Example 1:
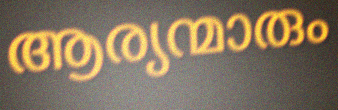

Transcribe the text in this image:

ആര്യന്മാരും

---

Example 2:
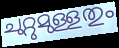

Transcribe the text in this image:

ചുറ്റുമുള്ളതും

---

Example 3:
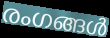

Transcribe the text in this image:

രംഗങ്ങൾ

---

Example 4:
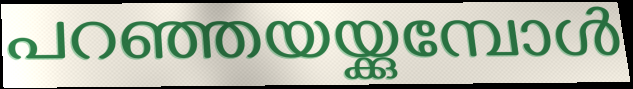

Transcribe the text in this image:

പറഞ്ഞയയ്ക്കുമ്പോൾ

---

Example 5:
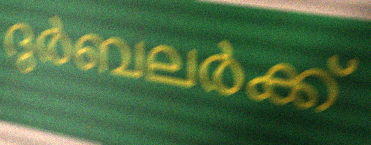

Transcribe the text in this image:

ദുർബലർക്ക്